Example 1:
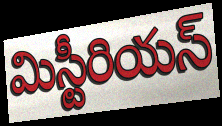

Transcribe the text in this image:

మిస్టీరియస్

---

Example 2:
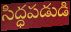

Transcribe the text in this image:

సిద్ధపడుడి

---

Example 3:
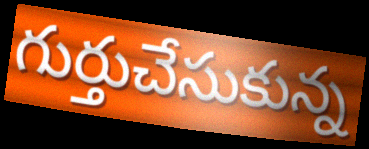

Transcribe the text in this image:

గుర్తుచేసుకున్న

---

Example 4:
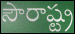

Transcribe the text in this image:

సౌరాష్ట్ర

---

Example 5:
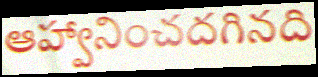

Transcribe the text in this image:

ఆహ్వానించదగినది